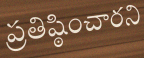
ప్రతిష్ఠించారని